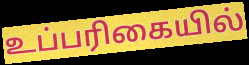
உப்பரிகையில்